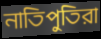
নাতিপুতিরা